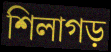
শিলাগড়